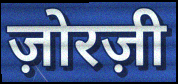
ज़ोरज़ी